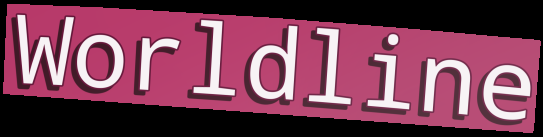
Worldline